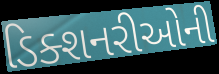
ડિક્શનરીઓની